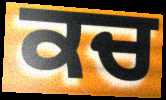
ਕਚ